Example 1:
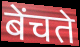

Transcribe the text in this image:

बेंचते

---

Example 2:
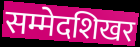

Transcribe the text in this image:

सम्मेदशिखर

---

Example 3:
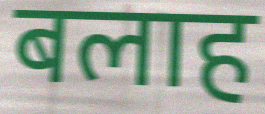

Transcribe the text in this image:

बलाह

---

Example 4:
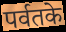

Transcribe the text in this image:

पर्वतके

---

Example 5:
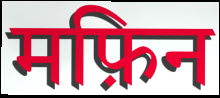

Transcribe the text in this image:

मफ़िन